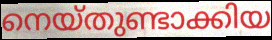
നെയ്തുണ്ടാക്കിയ